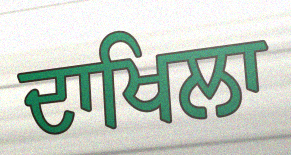
ਦਾਖਿਲਾ